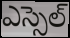
ఎస్సెల్